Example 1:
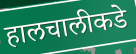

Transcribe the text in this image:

हालचालीकडे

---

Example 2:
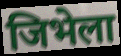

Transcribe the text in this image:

जिभेला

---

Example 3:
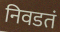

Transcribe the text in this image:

निवडतं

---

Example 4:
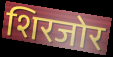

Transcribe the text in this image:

शिरजोर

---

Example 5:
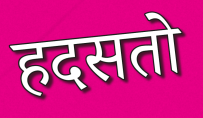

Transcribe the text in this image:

हदसतो